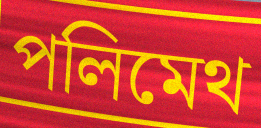
পলিমেথ